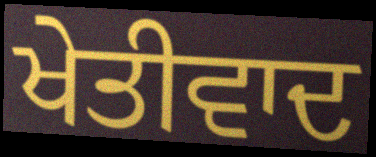
ਖੇਤੀਵਾਦ